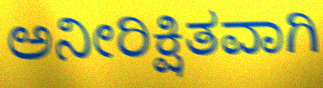
ಅನೀರಿಕ್ಷಿತವಾಗಿ